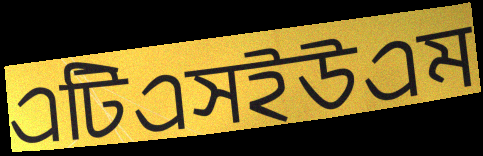
এটিএসইউএম